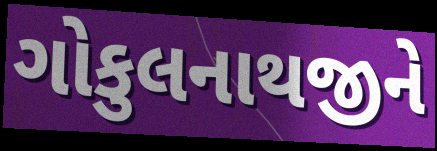
ગોકુલનાથજીને